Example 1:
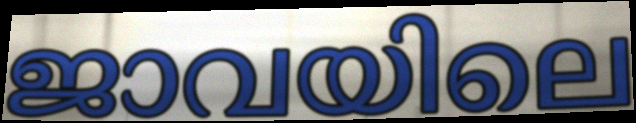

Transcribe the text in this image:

ജാവയിലെ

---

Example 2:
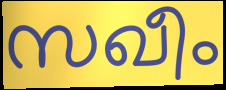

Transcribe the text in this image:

സഖീം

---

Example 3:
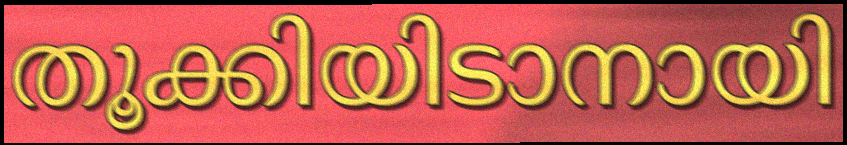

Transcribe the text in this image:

തൂക്കിയിടാനായി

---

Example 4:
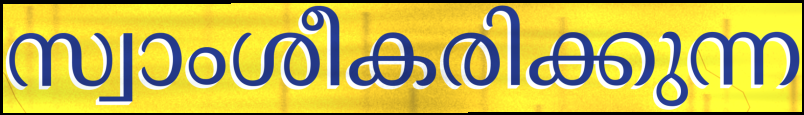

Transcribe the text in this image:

സ്വാംശീകരിക്കുന്ന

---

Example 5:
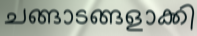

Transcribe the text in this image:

ചങ്ങാടങ്ങളാക്കി